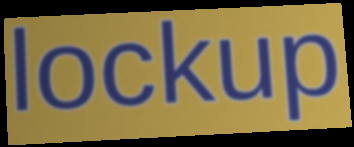
lockup